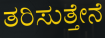
ತರಿಸುತ್ತೇನೆ